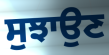
ਸੁਝਾਉਣ